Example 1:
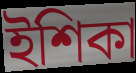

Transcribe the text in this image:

ইশিকা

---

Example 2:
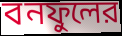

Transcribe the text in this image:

বনফুলের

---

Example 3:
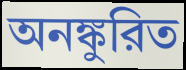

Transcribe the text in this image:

অনঙ্কুরিত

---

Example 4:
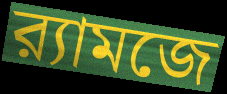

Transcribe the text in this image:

র‍্যামজে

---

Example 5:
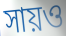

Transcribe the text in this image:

সায়ও